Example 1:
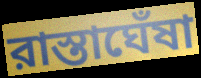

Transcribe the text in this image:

রাস্তাঘেঁষা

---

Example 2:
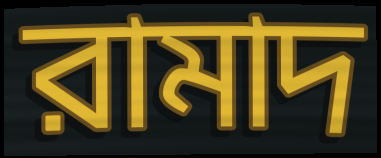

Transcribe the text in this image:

রামাদ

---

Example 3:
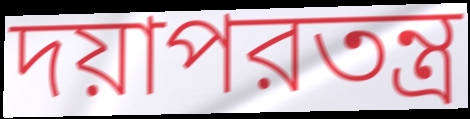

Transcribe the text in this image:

দয়াপরতন্ত্র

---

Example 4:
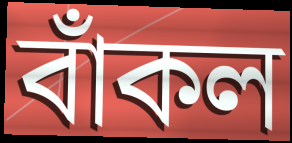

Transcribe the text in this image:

বাঁকল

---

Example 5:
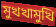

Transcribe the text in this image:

মুখখামুখি